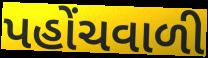
પહોંચવાળી